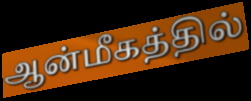
ஆன்மீகத்தில்